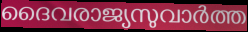
ദൈവരാജ്യസുവാർത്ത